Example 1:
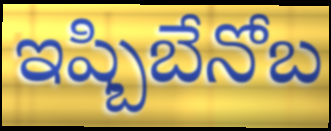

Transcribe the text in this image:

ఇష్బిబేనోబ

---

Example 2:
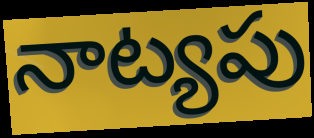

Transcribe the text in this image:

నాట్యపు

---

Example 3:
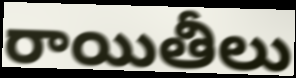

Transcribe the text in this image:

రాయితీలు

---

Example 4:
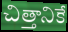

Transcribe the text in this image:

చిత్తానికే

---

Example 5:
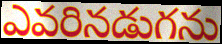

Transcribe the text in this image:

ఎవరినడుగను